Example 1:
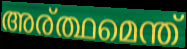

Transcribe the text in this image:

അര്ത്ഥമെന്ത്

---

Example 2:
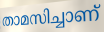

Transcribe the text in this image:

താമസിച്ചാണ്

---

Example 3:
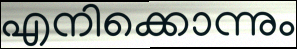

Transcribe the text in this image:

എനിക്കൊന്നും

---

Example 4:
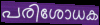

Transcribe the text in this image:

പരിശോധക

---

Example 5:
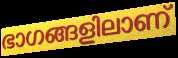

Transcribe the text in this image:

ഭാഗങ്ങളിലാണ്